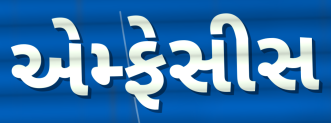
એમ્ફેસીસ